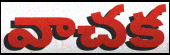
వాచక